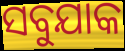
ସବୁଯାକ